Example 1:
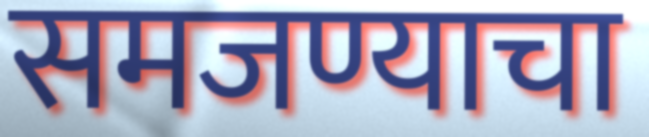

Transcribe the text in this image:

समजण्याचा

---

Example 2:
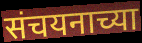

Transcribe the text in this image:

संचयनाच्या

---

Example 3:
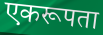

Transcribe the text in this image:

एकरूपता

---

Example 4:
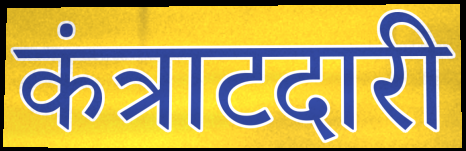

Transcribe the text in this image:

कंत्राटदारी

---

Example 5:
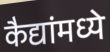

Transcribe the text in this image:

कैद्यांमध्ये